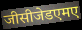
जीसीजेडएमए